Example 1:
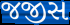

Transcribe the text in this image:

જજીસ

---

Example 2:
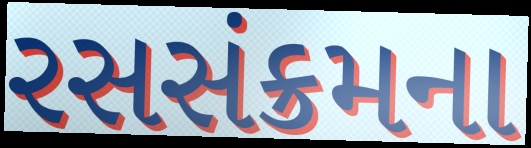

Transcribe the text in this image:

રસસંક્રમના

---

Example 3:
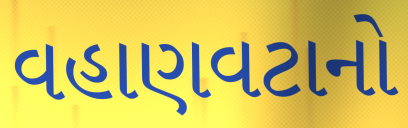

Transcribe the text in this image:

વહાણવટાનો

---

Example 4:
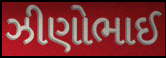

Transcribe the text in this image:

ઝીણોભાઈ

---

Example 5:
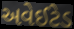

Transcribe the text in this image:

અવેઈટેડ